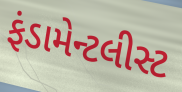
ફંડામેન્ટલીસ્ટ